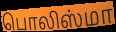
பொலிஸ்மா